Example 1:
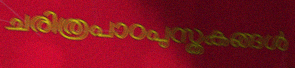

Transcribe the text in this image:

ചരിത്രപാഠപുസ്തകങ്ങൾ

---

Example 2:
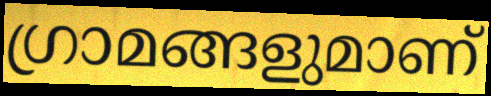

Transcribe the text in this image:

ഗ്രാമങ്ങളുമാണ്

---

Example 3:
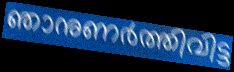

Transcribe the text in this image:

ഞാനുണർത്തിവിട്ട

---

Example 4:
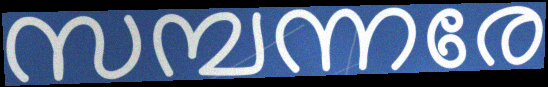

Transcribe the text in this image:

സമ്പന്നരേ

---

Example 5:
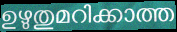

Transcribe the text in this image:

ഉഴുതുമറിക്കാത്ത